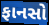
ફાનસો